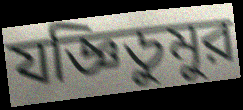
যজ্ঞিডুমুর